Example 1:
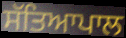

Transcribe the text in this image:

ਸੱਤਿਆਪਾਲ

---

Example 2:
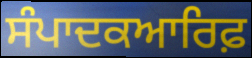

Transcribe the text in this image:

ਸੰਪਾਦਕਆਰਿਫ਼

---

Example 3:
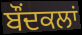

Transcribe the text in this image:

ਬੌਂਦਕਲਾਂ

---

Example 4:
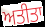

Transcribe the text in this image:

ਅਤੀਤਾ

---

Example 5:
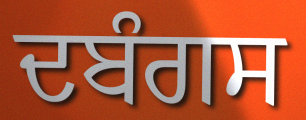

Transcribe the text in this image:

ਦਬੰਗਸ